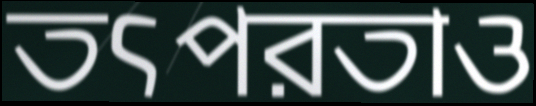
তৎপরতাও